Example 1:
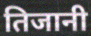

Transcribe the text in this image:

तिजानी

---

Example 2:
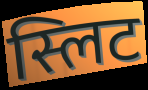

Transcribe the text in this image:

स्लिट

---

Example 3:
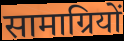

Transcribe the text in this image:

सामाग्रियों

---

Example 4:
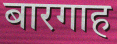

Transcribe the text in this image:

बारगाह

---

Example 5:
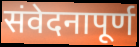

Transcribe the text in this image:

संवेदनापूर्ण